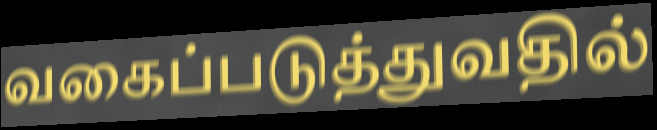
வகைப்படுத்துவதில்